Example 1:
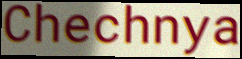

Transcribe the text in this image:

Chechnya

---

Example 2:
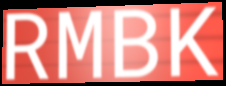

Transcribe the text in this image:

RMBK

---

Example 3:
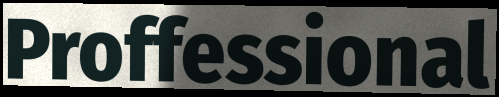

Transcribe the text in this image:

Proffessional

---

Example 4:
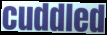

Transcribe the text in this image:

cuddled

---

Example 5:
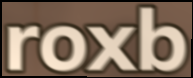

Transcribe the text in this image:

roxb